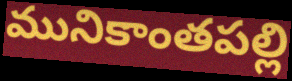
మునికాంతపల్లి